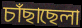
চাঁছাছেলা